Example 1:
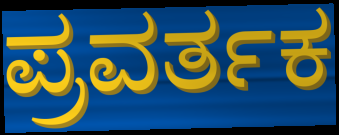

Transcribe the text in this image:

ಪ್ರವರ್ತಕ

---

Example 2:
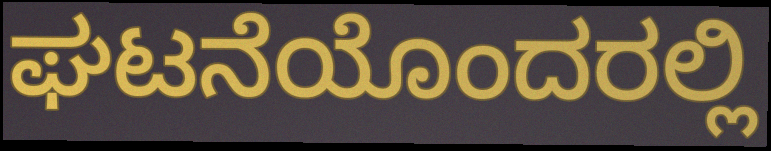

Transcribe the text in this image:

ಘಟನೆಯೊಂದರಲ್ಲಿ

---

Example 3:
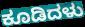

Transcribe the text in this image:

ಕೂಡಿದಳು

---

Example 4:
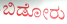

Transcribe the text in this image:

ಬಿಡೋರು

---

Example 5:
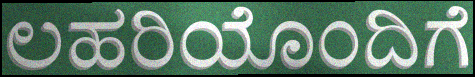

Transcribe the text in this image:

ಲಹರಿಯೊಂದಿಗೆ